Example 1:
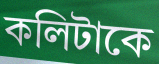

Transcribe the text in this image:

কলিটাকে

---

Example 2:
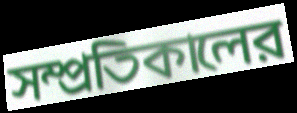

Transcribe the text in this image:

সম্প্রতিকালের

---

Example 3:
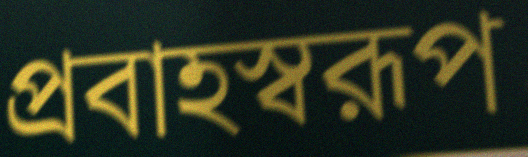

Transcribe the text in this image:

প্রবাহস্বরূপ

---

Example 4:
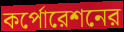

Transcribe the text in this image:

কর্পোরেশনের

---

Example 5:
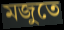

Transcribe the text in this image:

মজুতে